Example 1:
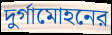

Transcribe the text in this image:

দুর্গামোহনের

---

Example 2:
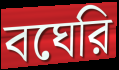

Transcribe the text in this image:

বঘেরি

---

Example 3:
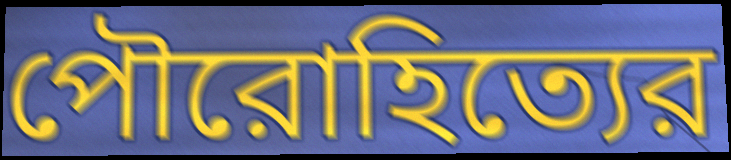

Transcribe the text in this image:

পৌরোহিত্যের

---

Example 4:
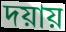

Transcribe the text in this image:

দয়ায়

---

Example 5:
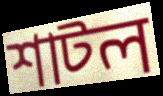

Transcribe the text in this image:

শাট্ল